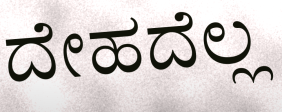
ದೇಹದೆಲ್ಲ